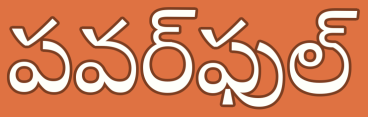
పవర్‌ఫుల్